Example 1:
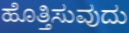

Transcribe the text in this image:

ಹೊತ್ತಿಸುವುದು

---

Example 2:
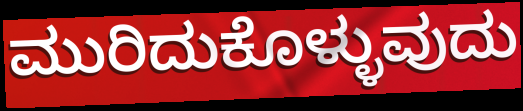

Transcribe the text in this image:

ಮುರಿದುಕೊಳ್ಳುವುದು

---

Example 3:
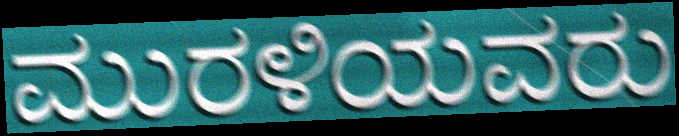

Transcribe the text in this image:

ಮುರಳಿಯವರು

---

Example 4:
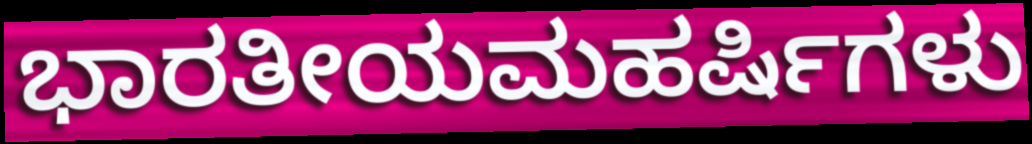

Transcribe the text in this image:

ಭಾರತೀಯಮಹರ್ಷಿಗಳು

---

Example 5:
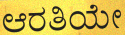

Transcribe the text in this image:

ಆರತಿಯೇ